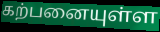
கற்பனையுள்ள